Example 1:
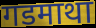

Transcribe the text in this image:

गडमाथा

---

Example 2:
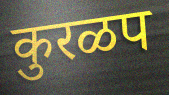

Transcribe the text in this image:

कुरळप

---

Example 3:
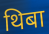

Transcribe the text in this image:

थिबा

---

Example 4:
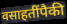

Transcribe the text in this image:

वसाहतींपैकी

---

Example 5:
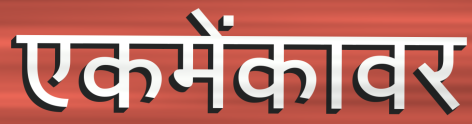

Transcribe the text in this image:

एकमेंकावर